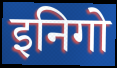
इनिगो